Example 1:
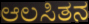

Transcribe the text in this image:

ಆಲಸಿತನ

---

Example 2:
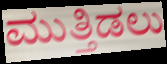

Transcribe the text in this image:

ಮುತ್ತಿಡಲು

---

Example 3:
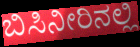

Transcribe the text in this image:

ಬಿಸಿನೀರಿನಲ್ಲಿ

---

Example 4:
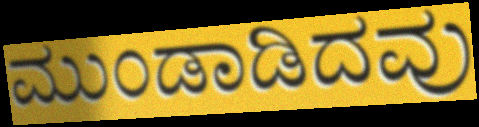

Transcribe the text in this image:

ಮುಂಡಾಡಿದವು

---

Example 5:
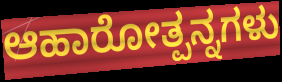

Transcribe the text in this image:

ಆಹಾರೋತ್ಪನ್ನಗಳು